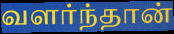
வளர்ந்தான்